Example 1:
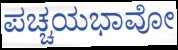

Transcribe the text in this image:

ಪಚ್ಚಯಭಾವೋ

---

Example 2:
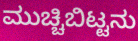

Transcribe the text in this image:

ಮುಚ್ಚಿಬಿಟ್ಟನು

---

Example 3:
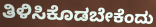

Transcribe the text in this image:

ತಿಳಿಸಿಕೊಡಬೇಕೆಂದು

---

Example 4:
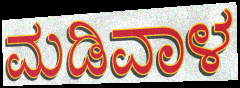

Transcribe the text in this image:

ಮಡಿವಾಳ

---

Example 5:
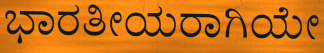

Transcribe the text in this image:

ಭಾರತೀಯರಾಗಿಯೇ